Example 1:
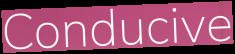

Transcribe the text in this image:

Conducive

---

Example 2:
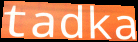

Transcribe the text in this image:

tadka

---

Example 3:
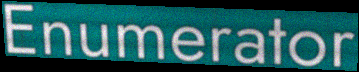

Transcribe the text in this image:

Enumerator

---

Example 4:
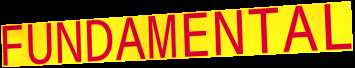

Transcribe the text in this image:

FUNDAMENTAL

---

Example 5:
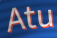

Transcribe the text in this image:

Atu